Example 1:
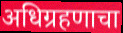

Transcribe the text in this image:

अधिग्रहणाचा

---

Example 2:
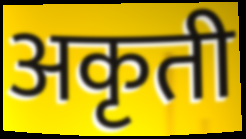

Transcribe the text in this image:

अकृती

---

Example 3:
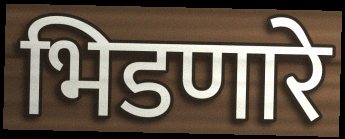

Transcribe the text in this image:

भिडणारे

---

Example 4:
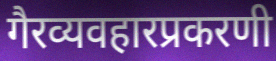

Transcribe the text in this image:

गैरव्यवहारप्रकरणी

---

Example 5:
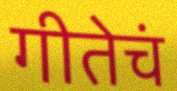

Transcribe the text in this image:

गीतेचं